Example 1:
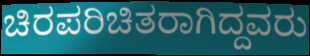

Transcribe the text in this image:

ಚಿರಪರಿಚಿತರಾಗಿದ್ದವರು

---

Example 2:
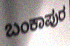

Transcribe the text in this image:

ಬಂಕಾಪುರ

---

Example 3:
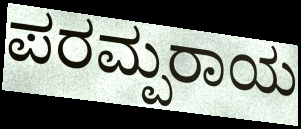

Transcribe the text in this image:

ಪರಮ್ಪರಾಯ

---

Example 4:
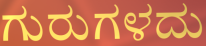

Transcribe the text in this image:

ಗುರುಗಳದು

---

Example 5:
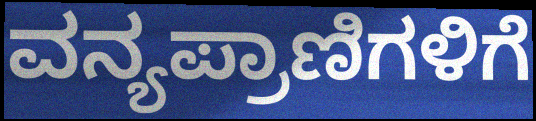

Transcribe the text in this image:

ವನ್ಯಪ್ರಾಣಿಗಳಿಗೆ